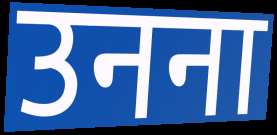
उनना